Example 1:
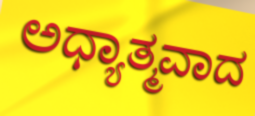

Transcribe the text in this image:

ಅಧ್ಯಾತ್ಮವಾದ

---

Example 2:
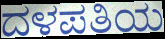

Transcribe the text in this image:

ದಳಪತಿಯ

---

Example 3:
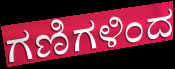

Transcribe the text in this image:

ಗಣಿಗಳಿಂದ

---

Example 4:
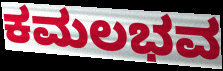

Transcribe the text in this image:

ಕಮಲಭವ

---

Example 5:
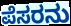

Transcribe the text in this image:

ಪೆಸರನು